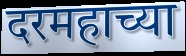
दरमहाच्या